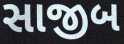
સાજીબ